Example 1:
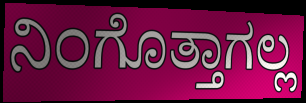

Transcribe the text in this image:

ನಿಂಗೊತ್ತಾಗಲ್ಲ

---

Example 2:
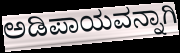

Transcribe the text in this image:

ಅಡಿಪಾಯವನ್ನಾಗಿ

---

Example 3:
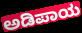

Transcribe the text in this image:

ಅಡಿಪಾಯ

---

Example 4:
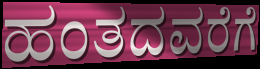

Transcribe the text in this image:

ಹಂತದವರೆಗೆ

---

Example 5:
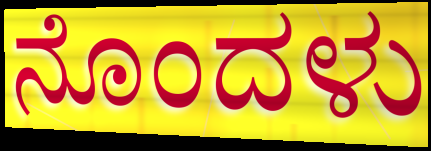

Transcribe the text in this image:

ನೊಂದಳು